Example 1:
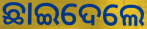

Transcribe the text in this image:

ଛାଇଦେଲେ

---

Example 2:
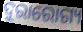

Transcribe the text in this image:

ଦୁରାରୋଗ୍ୟ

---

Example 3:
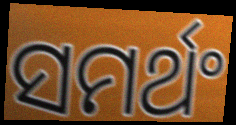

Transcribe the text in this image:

ସମର୍ଥଂ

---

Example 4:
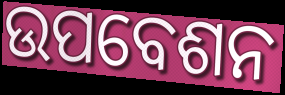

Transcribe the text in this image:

ଉପବେଶନ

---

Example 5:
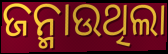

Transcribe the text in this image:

ଜନ୍ମାଉଥିଲା